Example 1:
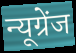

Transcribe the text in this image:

न्यूग्रेंज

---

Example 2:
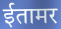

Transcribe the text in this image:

ईतामर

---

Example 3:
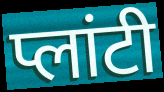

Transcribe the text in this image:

प्लांटी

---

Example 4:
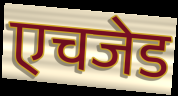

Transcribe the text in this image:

एचजेड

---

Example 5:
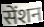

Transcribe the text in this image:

सेंशन